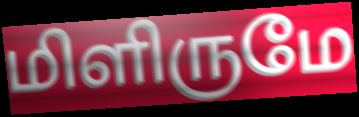
மிளிருமே